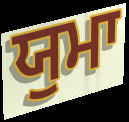
ਯੁਮਾ